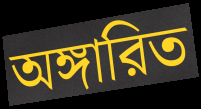
অঙ্গারিত